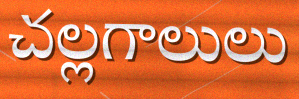
చల్లగాలులు